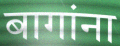
बागांना